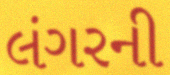
લંગરની